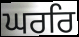
ਘਰਰਿ